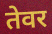
तेवर